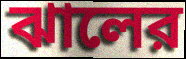
ঝালের